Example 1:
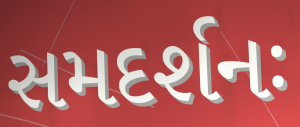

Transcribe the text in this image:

સમદર્શનઃ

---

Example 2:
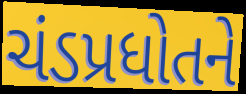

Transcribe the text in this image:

ચંડપ્રધોતને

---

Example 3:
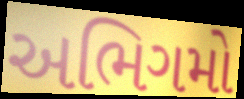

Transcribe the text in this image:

અભિગમો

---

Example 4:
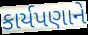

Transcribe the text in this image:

કાર્યપણાને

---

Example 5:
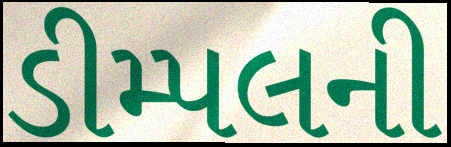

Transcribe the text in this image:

ડીમ્પલની